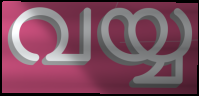
വയ്യ